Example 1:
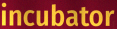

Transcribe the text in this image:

incubator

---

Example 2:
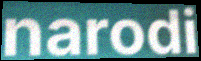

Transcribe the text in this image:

narodi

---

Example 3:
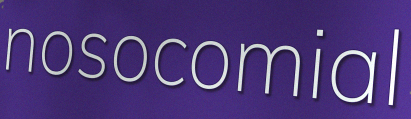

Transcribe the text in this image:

nosocomial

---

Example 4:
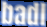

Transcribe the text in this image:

badl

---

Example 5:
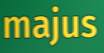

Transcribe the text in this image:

majus